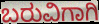
ಬರುವಿಗಾಗಿ